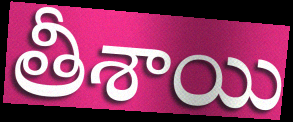
తీశాయి